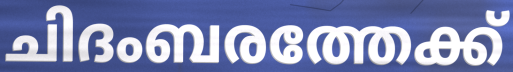
ചിദംബരത്തേക്ക്